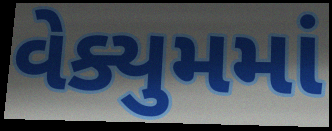
વેક્યુમમાં